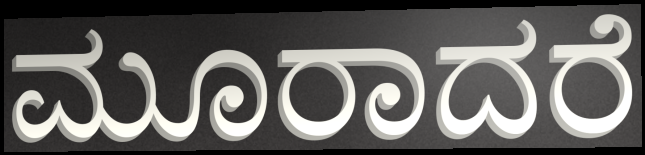
ಮೂರಾದರೆ